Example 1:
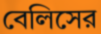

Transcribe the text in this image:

বেলিসের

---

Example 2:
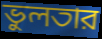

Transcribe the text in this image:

ভুলতার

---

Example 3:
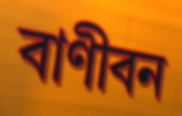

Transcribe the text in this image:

বাণীবন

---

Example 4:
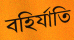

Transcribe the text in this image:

বহির্যাতি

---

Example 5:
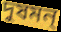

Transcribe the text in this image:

দুষমন্